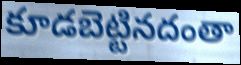
కూడబెట్టినదంతా